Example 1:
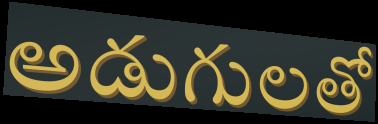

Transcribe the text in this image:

అడుగులతో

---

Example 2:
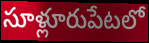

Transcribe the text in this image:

సూళ్లూరుపేటలో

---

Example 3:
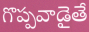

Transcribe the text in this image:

గొప్పవాడైతే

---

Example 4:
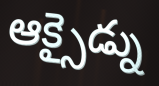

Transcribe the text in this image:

ఆక్సైడ్ను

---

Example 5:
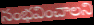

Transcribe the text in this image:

సంభవించాలని